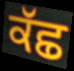
ਕੱਛ